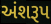
અંશરૂપ